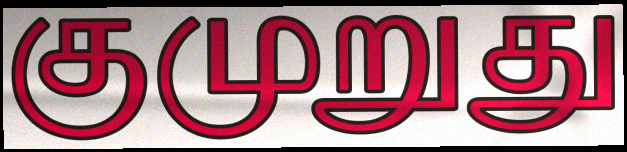
குமுறுது